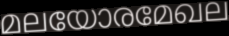
മലയോരമേഖല